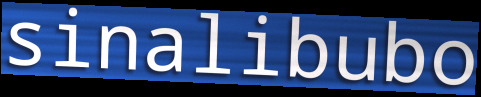
sinalibubo